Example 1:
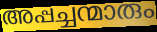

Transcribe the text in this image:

അപ്പച്ചന്മാരും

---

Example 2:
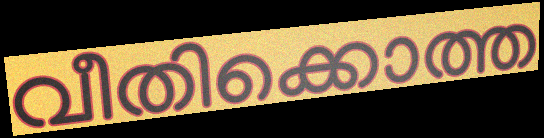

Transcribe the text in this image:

വീതിക്കൊത്ത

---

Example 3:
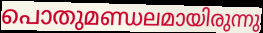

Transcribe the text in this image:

പൊതുമണ്ഡലമായിരുന്നു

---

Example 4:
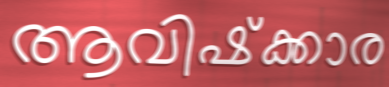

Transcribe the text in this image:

ആവിഷ്‌ക്കാര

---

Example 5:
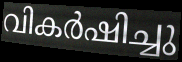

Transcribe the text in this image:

വികർഷിച്ചു